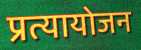
प्रत्यायोजन